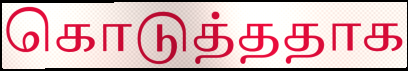
கொடுத்ததாக